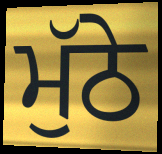
ਮੁੱਠੇ